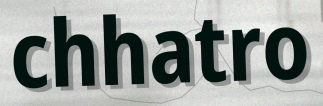
chhatro